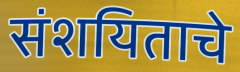
संशयिताचे